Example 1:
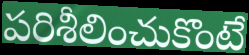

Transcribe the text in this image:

పరిశీలించుకొంటే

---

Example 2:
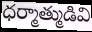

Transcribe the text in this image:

ధర్మాత్ముడివి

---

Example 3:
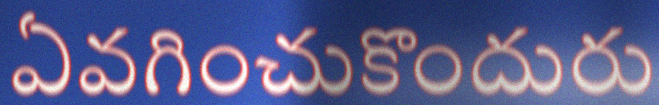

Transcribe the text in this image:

ఏవగించుకొందురు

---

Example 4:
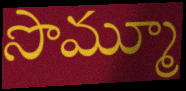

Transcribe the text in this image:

సొమ్మూ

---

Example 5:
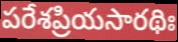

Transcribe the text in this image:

పరేశప్రియసారథిః